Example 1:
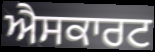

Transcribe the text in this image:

ਐਸਕਾਰਟ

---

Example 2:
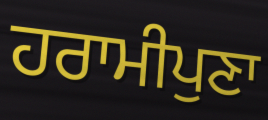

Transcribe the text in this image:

ਹਰਾਮੀਪੁਣਾ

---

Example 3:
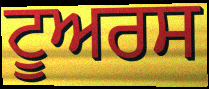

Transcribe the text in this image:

ਟੂਅਰਸ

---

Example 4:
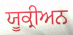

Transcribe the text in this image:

ਯੂਕ੍ਰੀਅਨ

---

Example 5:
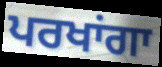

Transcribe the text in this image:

ਪਰਖਾਂਗਾ